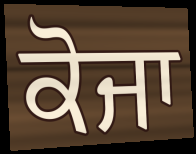
ਕੋਜਾ